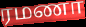
ரமணா